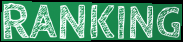
RANKING